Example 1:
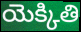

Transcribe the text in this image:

యెక్కితి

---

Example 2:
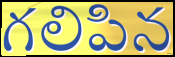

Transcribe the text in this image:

గలిపిన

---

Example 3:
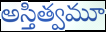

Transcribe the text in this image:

అస్తిత్వమూ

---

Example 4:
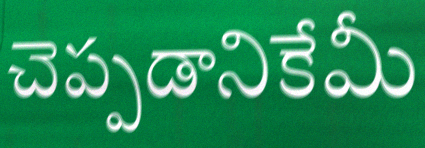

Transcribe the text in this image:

చెప్పడానికేమీ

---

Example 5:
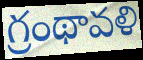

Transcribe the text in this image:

గ్రంథావళి